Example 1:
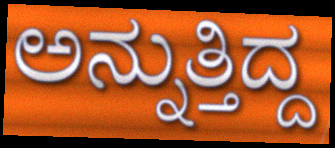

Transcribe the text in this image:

ಅನ್ನುತ್ತಿದ್ದ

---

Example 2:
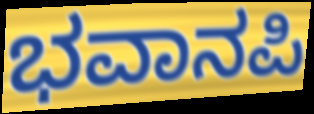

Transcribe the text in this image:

ಭವಾನಪಿ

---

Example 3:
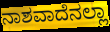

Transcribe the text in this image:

ನಾಶವಾದೆನಲ್ಲಾ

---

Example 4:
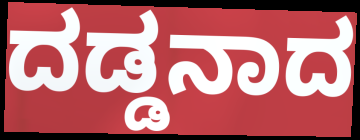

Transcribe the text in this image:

ದಡ್ಡನಾದ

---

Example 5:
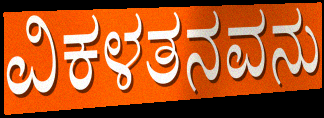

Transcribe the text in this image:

ವಿಕಳತನವನು